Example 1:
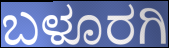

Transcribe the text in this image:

ಬಳೂರಗಿ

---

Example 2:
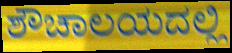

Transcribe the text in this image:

ಶೌಚಾಲಯದಲ್ಲಿ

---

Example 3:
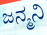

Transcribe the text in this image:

ಜನ್ಮನಿ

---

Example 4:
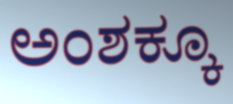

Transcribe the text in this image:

ಅಂಶಕ್ಕೂ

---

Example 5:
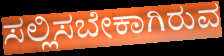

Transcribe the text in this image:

ಸಲ್ಲಿಸಬೇಕಾಗಿರುವ